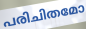
പരിചിതമോ